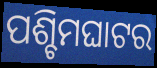
ପଶ୍ଚିମଘାଟର